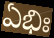
ఏభిః